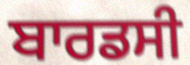
ਬਾਰਡਸੀ